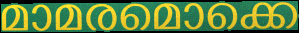
മാമരമൊക്കെ